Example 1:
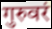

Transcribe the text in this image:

गुरुवरं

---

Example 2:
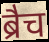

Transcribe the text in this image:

ब्रैच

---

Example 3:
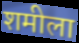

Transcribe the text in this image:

शमीला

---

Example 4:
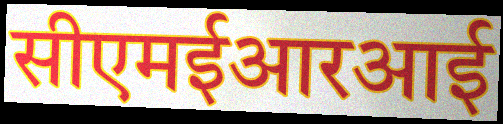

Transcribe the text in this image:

सीएमईआरआई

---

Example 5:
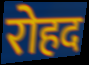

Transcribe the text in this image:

रोहद